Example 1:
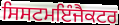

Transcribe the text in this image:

ਸਿਸਟਮਇੰਜੈਕਟਰ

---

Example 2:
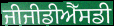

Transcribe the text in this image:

ਜੀਜੀਡੀਐੱਸਡੀ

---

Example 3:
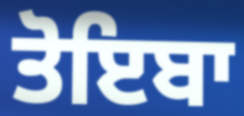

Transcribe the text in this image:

ਤੋਇਬਾ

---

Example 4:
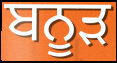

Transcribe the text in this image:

ਬਨੂੜ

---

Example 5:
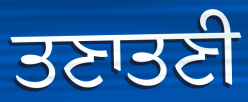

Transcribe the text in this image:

ਤਣਾਤਣੀ